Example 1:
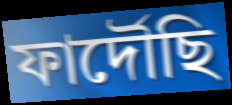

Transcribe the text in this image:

ফাৰ্দৌছি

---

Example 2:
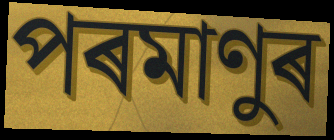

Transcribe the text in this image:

পৰমাণুৰ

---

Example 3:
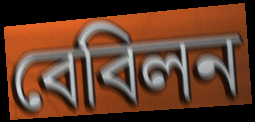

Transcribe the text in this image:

বেবিলন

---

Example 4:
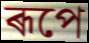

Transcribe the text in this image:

ৰূপে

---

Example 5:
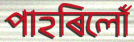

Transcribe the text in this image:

পাহৰিলোঁ